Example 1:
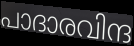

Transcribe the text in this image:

പാദാരവിന്ദ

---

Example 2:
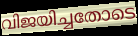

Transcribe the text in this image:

വിജയിച്ചതോടെ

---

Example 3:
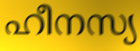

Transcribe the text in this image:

ഹീനസ്യ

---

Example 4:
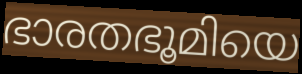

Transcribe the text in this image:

ഭാരതഭൂമിയെ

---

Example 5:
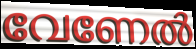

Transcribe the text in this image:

വേണേൽ